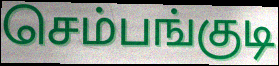
செம்பங்குடி